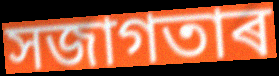
সজাগতাৰ